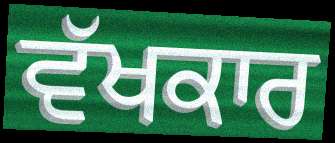
ਵੱਖਕਾਰ